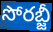
సోరబ్జీ